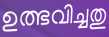
ഉത്ഭവിച്ചതു